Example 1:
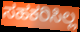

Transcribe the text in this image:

ಸಹಕರಿಸಿಲ್ಲ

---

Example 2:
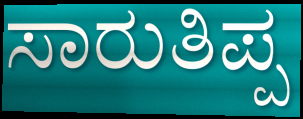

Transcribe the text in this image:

ಸಾರುತಿಪ್ಪ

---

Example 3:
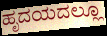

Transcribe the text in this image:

ಹೃದಯದಲ್ಲೂ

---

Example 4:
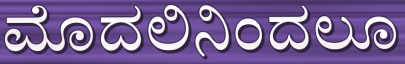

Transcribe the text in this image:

ಮೊದಲಿನಿಂದಲೂ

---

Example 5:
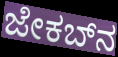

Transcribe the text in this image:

ಜೇಕಬ್‌ನ